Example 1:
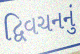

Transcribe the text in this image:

દ્વિવચનનું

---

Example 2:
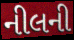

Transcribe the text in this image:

નીલની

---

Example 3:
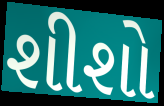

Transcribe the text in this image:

શીશો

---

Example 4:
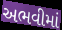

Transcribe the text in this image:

અભવીમાં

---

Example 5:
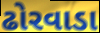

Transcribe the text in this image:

ઢોરવાડા